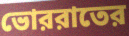
ভোররাতের